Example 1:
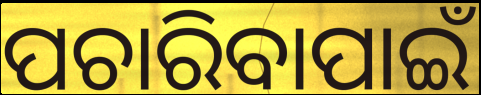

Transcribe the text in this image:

ପଚାରିବାପାଇଁ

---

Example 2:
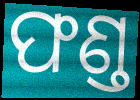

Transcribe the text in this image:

ଫଣ୍ଡ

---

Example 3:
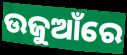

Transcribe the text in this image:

ଉଜୁଆଁରେ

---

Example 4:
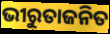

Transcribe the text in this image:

ଭୀରୁତାଜନିତ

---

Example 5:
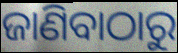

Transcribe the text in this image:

ଜାଣିବାଠାରୁ